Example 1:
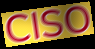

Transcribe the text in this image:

CISO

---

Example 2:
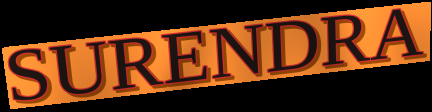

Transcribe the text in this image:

SURENDRA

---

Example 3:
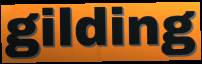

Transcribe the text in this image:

gilding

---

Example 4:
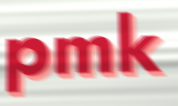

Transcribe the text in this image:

pmk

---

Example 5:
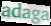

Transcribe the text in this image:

adaga